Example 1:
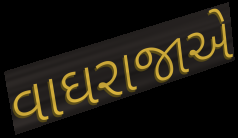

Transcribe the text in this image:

વાઘરાજાએ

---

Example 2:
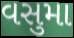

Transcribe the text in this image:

વસુમા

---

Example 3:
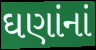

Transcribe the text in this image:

ઘણાંનાં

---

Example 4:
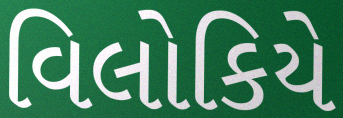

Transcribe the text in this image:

વિલોકિયે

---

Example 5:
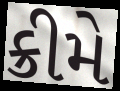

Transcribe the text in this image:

ક્રીમે